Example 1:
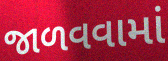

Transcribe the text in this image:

જાળવવામાં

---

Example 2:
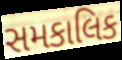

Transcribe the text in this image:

સમકાલિક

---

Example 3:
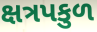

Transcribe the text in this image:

ક્ષત્રપકુળ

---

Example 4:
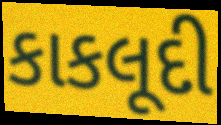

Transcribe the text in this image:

કાકલૂદી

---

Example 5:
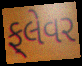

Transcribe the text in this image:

ફ્‌લેવર